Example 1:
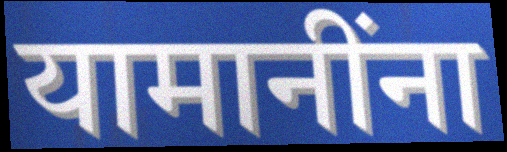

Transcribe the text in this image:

यामानींना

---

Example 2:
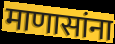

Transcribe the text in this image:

माणासांना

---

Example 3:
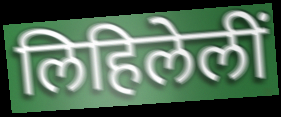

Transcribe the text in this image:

लिहिलेलीं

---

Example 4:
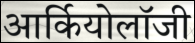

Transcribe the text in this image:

आर्कियोलॉजी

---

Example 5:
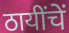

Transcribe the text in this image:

ठायींचें